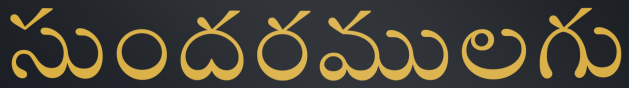
సుందరములగు